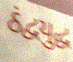
ઠંદ્વયુદ્ધ